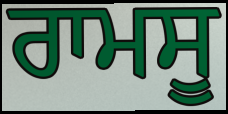
ਰਾਮਸੂ